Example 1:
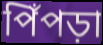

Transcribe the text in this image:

পিঁপড়া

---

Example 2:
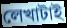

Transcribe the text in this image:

লেখাটাই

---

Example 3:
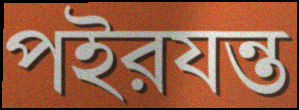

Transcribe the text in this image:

পইরযন্ত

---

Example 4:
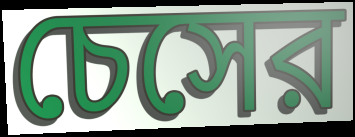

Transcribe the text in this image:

চেসের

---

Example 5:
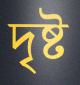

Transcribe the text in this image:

দৃষ্ট